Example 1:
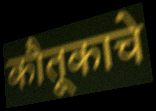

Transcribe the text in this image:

कौतूकाचे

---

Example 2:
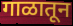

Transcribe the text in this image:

गाळातून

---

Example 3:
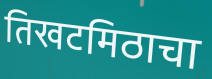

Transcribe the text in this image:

तिखटमिठाचा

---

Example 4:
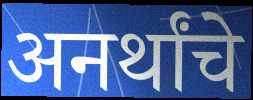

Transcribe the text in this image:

अनर्थांचे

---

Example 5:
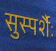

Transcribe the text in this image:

सुस्पर्शैः